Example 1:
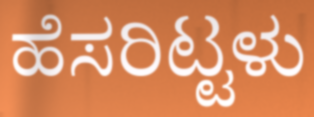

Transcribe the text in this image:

ಹೆಸರಿಟ್ಟಳು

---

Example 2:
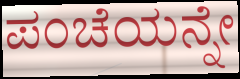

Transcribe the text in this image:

ಪಂಚೆಯನ್ನೇ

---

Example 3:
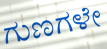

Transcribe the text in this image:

ಗುಣಗಳೇ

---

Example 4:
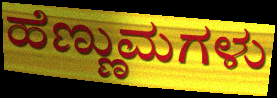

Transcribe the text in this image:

ಹೆಣ್ಣುಮಗಳು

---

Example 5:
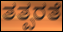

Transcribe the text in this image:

ತತ್ಪರತೆ